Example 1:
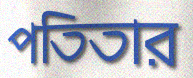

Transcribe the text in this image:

পতিতার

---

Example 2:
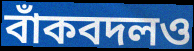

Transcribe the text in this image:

বাঁকবদলও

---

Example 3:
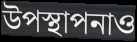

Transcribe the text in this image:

উপস্থাপনাও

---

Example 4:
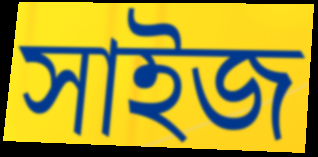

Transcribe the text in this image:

সাইজ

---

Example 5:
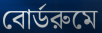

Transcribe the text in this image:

বোর্ডরুমে